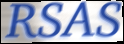
RSAS